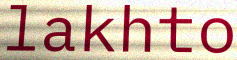
lakhto